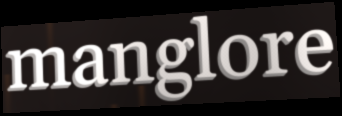
manglore